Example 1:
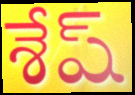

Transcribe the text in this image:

శేష్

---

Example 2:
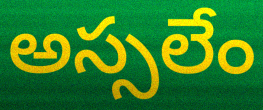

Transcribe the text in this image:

అస్సలేం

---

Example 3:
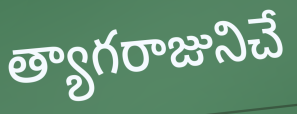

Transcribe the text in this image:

త్యాగరాజునిచే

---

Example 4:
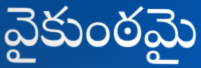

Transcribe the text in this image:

వైకుంఠమై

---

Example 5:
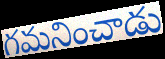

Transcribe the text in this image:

గమనించాడు